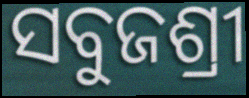
ସବୁଜଶ୍ରୀ